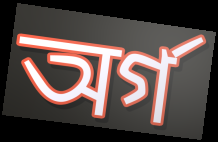
অৰ্গ